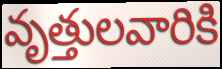
వృత్తులవారికి